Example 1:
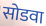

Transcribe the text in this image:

सोडवा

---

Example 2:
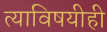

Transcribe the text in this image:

त्याविषयीही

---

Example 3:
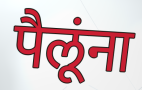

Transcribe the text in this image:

पैलूंना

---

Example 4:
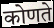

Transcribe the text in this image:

कोणते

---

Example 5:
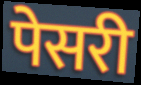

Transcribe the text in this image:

पेसरी